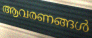
ആവരണങ്ങൾ